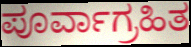
ಪೂರ್ವಾಗ್ರಹಿತ